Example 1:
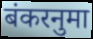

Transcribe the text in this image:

बंकरनुमा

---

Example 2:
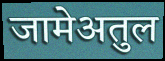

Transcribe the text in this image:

जामेअतुल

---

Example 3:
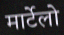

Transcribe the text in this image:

मार्टेलो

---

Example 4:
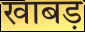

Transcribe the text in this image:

खाबड़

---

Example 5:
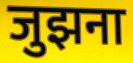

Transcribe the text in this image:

जुझना